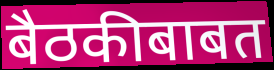
बैठकीबाबत